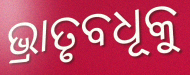
ଭ୍ରାତୃବଧୂକୁ